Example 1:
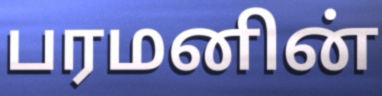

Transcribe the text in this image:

பரமனின்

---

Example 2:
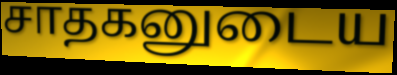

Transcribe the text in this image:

சாதகனுடைய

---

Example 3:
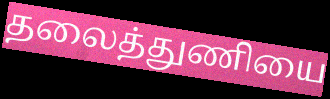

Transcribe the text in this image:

தலைத்துணியை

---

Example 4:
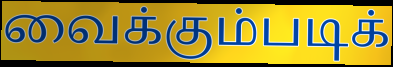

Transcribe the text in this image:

வைக்கும்படிக்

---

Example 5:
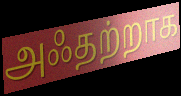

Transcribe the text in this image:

அஃதற்றாக